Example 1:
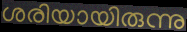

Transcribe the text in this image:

ശരിയായിരുന്നു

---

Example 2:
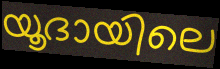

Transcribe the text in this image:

യൂദായിലെ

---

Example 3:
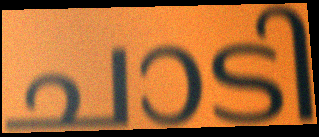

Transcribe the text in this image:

ചാടി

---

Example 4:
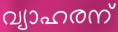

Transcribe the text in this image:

വ്യാഹരന്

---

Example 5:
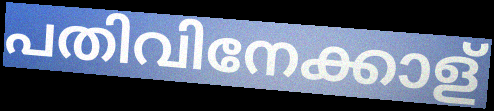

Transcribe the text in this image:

പതിവിനേക്കാള്